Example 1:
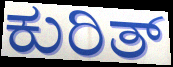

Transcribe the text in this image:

ಕುರಿತ್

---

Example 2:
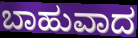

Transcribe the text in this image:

ಬಾಹುವಾದ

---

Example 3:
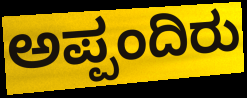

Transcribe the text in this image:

ಅಪ್ಪಂದಿರು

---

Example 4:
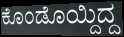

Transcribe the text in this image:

ಕೊಂಡೊಯ್ದಿದ್ದ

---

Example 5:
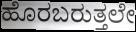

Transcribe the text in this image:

ಹೊರಬರುತ್ತಲೇ